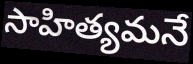
సాహిత్యమనే